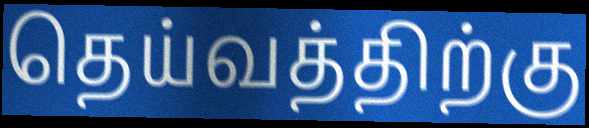
தெய்வத்திற்கு